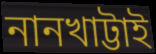
নানখাট্টাই